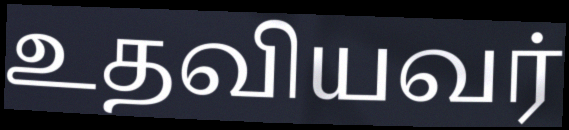
உதவியவர்